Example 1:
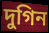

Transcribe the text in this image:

দুগিন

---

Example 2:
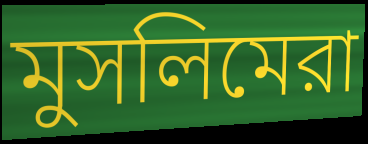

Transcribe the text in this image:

মুসলিমেরা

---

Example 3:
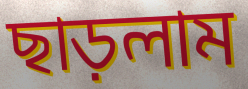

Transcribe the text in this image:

ছাড়লাম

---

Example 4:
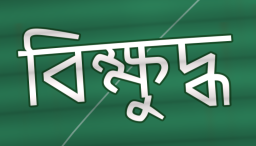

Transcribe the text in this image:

বিক্ষুদ্ধ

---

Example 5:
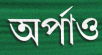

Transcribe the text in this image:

অর্পাও